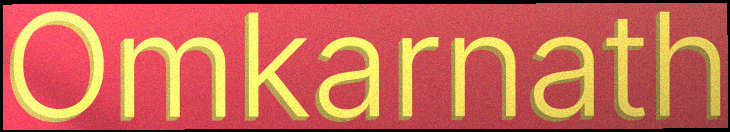
Omkarnath